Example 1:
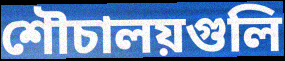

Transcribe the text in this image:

শৌচালয়গুলি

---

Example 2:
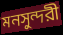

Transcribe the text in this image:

মনসুন্দরী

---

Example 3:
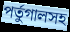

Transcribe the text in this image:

পর্তুগালসহ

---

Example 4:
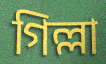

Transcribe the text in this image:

গিল্লা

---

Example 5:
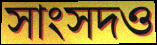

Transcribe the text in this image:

সাংসদও